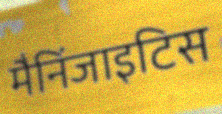
मैनिंजाइटिस